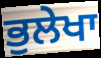
ਭੁਲੇਖਾ